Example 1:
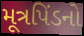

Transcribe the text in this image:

મૂત્રપિંડનો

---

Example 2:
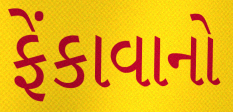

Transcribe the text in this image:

ફેંકાવાનો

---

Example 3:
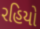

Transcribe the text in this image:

રહિયો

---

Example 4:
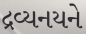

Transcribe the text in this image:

દ્રવ્યનયને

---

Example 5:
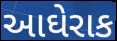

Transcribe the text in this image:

આઘેરાક